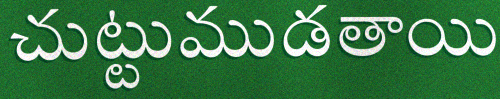
చుట్టుముడతాయి